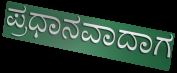
ಪ್ರಧಾನವಾದಾಗ